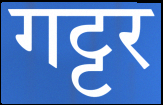
गट्टर